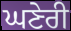
ਘਣੇਰੀ